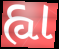
હ્વા